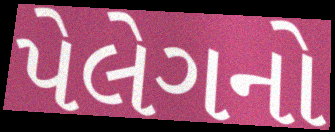
પેલેગનો